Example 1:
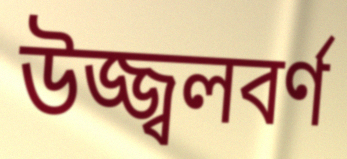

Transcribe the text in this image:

উজ্জ্বলবর্ণ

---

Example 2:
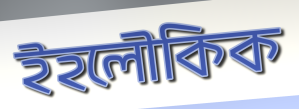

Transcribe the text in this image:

ইহলৌকিক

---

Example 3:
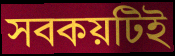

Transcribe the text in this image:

সবকয়টিই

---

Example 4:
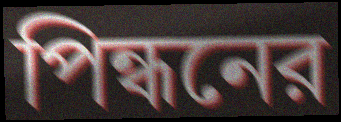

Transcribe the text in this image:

পিন্ধনের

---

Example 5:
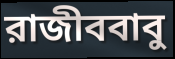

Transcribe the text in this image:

রাজীববাবু